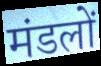
मंडलों